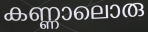
കണ്ണാലൊരു